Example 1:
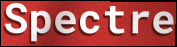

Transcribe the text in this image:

Spectre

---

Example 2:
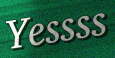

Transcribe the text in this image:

Yessss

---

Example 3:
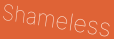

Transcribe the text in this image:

Shameless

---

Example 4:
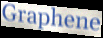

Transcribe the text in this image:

Graphene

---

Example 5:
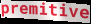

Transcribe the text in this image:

premitive